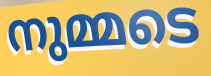
നുമ്മടെ